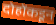
दोहोंकडून